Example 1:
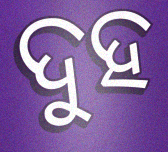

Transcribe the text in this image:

ଦୁହ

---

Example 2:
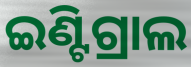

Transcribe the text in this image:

ଇଣ୍ଟିଗ୍ରାଲ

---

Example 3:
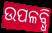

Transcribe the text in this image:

ଉପଳବ୍ଧି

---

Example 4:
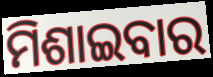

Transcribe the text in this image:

ମିଶାଇବାର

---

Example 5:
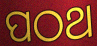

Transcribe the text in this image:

ପଠଥ